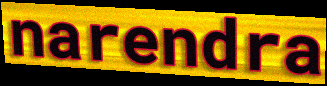
narendra